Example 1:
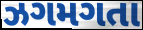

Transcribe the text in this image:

ઝગમગતા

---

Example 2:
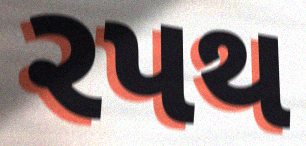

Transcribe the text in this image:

રપથ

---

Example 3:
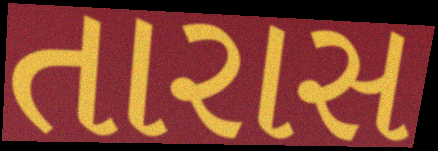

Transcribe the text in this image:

તારાસ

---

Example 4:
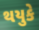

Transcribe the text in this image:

થયુકે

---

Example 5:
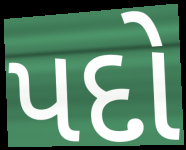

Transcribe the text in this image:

પદો